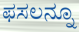
ಫಸಲನ್ನೂ